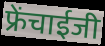
फ्रेंचाईजी